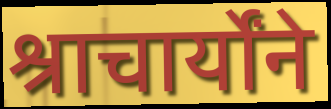
श्राचार्योंने